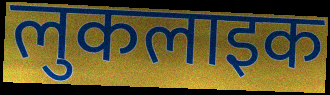
लुकलाइक